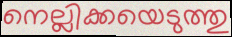
നെല്ലിക്കയെടുത്തു